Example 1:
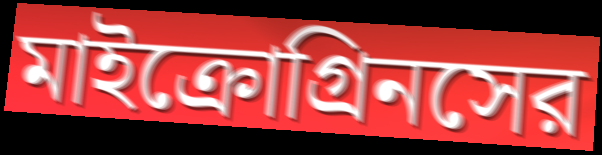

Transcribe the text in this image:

মাইক্রোগ্রিনসের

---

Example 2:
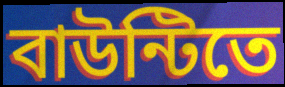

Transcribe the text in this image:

বাউন্টিতে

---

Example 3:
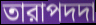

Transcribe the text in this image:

তারাপদদা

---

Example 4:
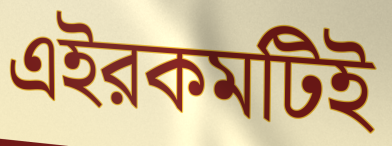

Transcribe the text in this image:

এইরকমটিই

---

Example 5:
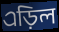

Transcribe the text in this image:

এড়িল